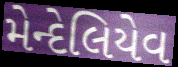
મેન્દેલિયેવ